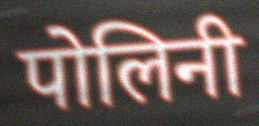
पोलिनी